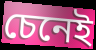
চেনেই